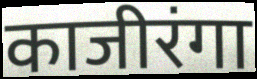
काजीरंगा